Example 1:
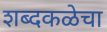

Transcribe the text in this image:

शब्दकळेचा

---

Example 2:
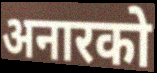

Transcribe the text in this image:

अनारको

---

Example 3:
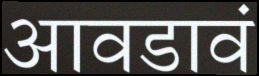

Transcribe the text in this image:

आवडावं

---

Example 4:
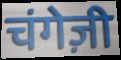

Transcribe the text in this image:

चंगेज़ी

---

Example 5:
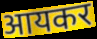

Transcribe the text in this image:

आयकर